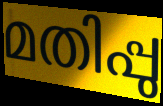
മതിപ്പു